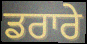
ਡਰਾਰੇ